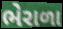
ભેરાળા